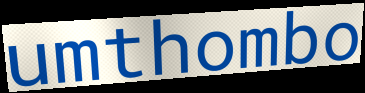
umthombo